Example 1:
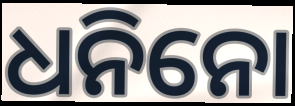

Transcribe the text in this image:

ଧନିନୋ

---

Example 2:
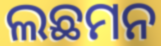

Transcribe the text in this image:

ଲଛମନ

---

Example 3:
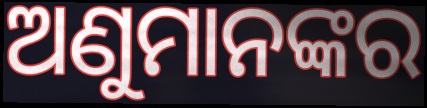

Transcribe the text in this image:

ଅଣୁମାନଙ୍କର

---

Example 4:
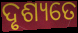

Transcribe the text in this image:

ଦୃଶ୍ୟତେ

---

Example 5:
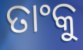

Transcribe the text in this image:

ତାଂକୁ